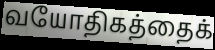
வயோதிகத்தைக்